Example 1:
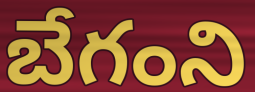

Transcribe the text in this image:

బేగంని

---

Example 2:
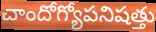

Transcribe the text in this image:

చాందోగ్యోపనిషత్తు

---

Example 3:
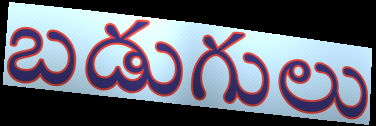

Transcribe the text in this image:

బడుగులు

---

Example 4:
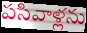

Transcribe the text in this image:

పసివాళ్లను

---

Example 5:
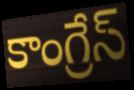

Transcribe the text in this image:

కాంగ్రేస్